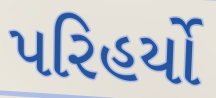
પરિહર્યો